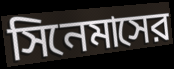
সিনেমাসের